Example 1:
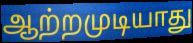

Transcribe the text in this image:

ஆற்றமுடியாது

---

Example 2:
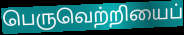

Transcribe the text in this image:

பெருவெற்றியைப்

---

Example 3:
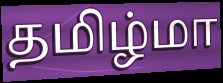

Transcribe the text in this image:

தமிழ்மா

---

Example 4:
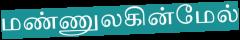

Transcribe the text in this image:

மண்ணுலகின்மேல்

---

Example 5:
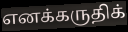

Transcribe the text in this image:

எனக்கருதிக்